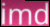
imd